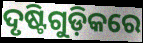
ଦୃଷ୍ଟିଗୁଡ଼ିକରେ